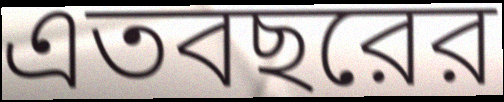
এতবছরের